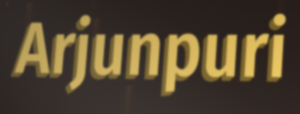
Arjunpuri